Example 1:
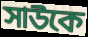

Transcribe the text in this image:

সাউকে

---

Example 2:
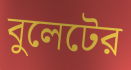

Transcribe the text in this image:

বুলেটের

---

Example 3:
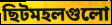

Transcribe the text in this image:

ছিটমহলগুলো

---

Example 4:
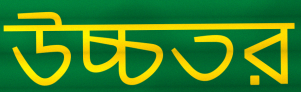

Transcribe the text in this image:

উচ্চতর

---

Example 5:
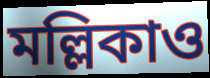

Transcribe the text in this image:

মল্লিকাও